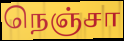
நெஞ்சா